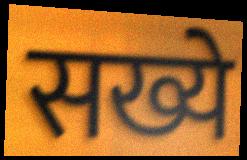
सख्ये